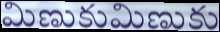
మిణుకుమిణుకు